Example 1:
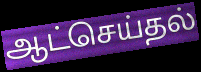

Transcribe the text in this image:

ஆட்செய்தல்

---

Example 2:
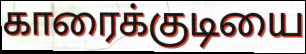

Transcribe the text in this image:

காரைக்குடியை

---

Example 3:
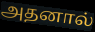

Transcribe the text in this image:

அதனால்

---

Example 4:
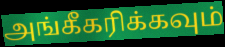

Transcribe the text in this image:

அங்கீகரிக்கவும்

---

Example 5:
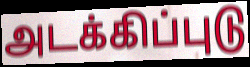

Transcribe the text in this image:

அடக்கிப்புடு